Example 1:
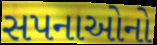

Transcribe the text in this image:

સપનાઓનો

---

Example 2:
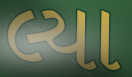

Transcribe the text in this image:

લ્યા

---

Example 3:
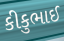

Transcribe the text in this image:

કીકુભાઈ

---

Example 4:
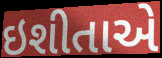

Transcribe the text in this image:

ઇશીતાએ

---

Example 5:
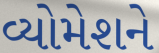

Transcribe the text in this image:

વ્યોમેશને